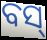
ବସ୍